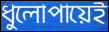
ধুলোপায়েই